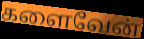
களைவேன்